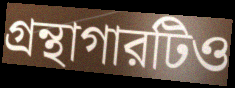
গ্রন্থাগারটিও